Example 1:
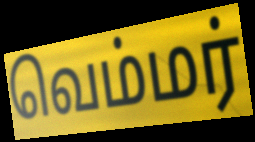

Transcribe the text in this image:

வெம்மர்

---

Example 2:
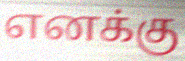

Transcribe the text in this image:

எனக்கு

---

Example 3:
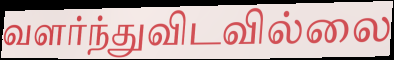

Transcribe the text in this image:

வளர்ந்துவிடவில்லை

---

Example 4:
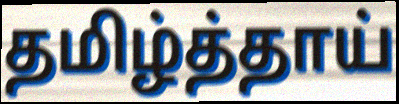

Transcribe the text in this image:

தமிழ்த்தாய்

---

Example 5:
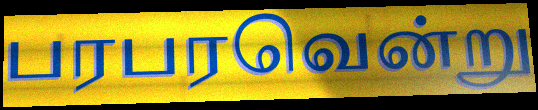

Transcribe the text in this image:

பரபரவென்று